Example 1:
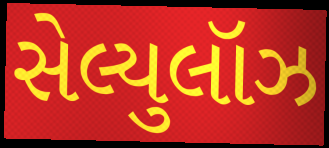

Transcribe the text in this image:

સેલ્યુલૉઝ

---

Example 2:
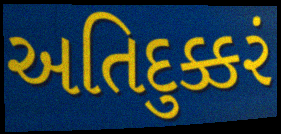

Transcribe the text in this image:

અતિદુક્કરં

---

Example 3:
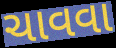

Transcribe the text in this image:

ચાવવા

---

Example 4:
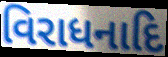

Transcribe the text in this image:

વિરાધનાદિ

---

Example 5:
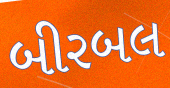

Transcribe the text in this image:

બીરબલ